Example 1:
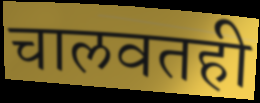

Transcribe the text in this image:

चालवतही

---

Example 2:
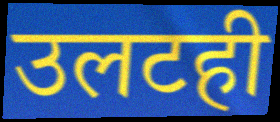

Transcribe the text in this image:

उलटही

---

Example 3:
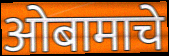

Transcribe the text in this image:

ओबामाचे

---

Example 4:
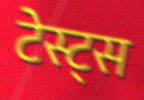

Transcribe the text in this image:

टेस्ट्स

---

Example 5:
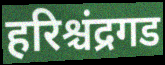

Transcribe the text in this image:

हरिश्चंद्रगड